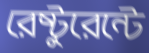
রেষ্টুরেন্টে